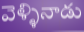
వెళ్ళినాడు